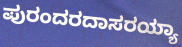
ಪುರಂದರದಾಸರಯ್ಯಾ